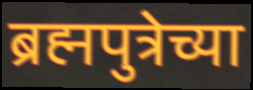
ब्रह्मपुत्रेच्या